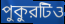
পুকুরটিও